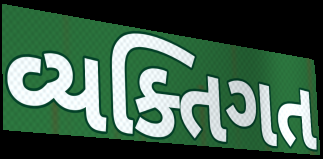
વ્યક્તિગત